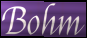
Bohm